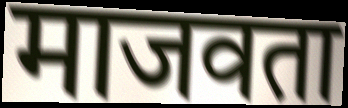
माजवता